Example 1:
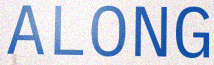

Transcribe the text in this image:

ALONG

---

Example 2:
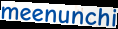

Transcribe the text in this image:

meenunchi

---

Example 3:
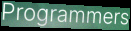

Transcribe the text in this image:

Programmers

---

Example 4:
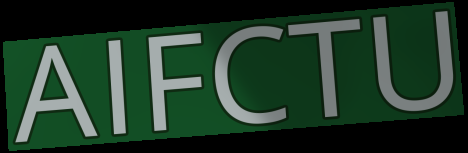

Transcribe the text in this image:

AIFCTU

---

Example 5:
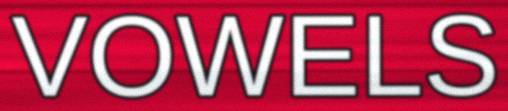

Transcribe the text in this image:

VOWELS